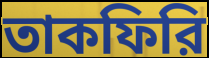
তাকফিরি